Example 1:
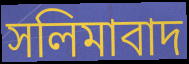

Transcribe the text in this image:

সলিমাবাদ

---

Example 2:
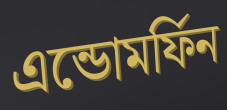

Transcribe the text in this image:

এন্ডোমর্ফিন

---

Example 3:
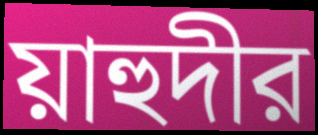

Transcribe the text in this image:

য়াহুদীর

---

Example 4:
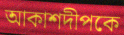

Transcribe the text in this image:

আকাশদীপকে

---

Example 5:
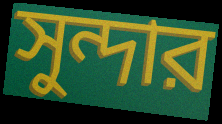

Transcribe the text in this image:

সুন্দার